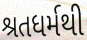
શ્રતધર્મથી